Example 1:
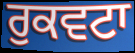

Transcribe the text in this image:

ਰੁਕਵਟਾ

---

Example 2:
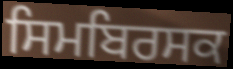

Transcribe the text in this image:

ਸਿਮਬਿਰਸਕ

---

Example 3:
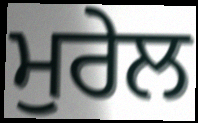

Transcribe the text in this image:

ਮੁਰੇਲ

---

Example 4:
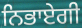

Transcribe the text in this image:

ਨਿਭਾਏਗੀ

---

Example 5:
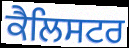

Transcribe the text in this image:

ਕੈਲਿਸਟਰ